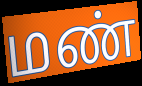
மண்